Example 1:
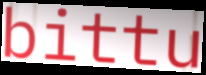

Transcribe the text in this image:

bittu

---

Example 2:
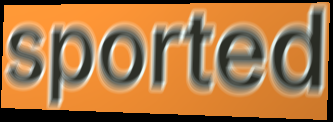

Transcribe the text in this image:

sported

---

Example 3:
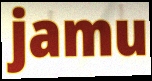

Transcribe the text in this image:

jamu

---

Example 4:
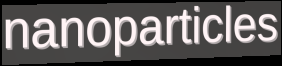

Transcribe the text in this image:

nanoparticles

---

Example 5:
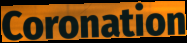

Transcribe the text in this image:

Coronation